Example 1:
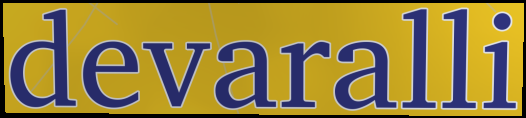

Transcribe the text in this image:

devaralli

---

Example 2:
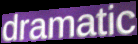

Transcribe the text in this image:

dramatic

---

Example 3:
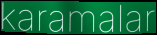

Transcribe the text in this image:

karamalar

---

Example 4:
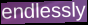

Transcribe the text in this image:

endlessly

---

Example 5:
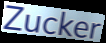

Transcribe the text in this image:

Zucker